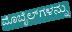
ಮೊಬೈಲ್‌ಗಳನ್ನು